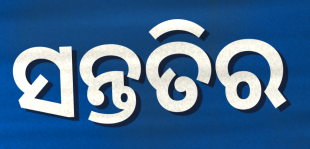
ସନ୍ତତିର